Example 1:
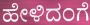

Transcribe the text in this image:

ಹೇಳಿದಂಗೆ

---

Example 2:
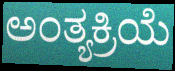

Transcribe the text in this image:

ಅಂತ್ಯಕ್ರಿಯೆ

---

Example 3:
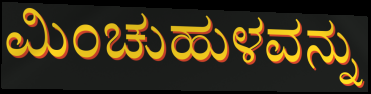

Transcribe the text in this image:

ಮಿಂಚುಹುಳವನ್ನು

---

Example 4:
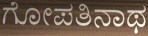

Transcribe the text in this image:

ಗೋಪತಿನಾಥ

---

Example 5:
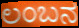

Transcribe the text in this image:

ಲಂಬನ